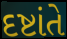
દષ્ટાંતે